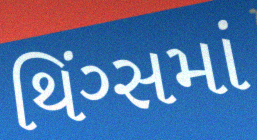
થિંગ્સમાં